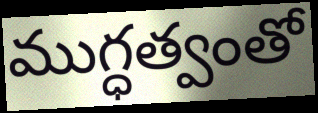
ముగ్ధత్వంతో